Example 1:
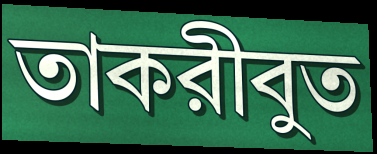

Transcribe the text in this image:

তাকরীবুত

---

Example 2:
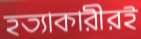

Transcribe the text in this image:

হত্যাকারীরই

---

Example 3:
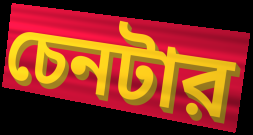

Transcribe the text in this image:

চেনটার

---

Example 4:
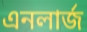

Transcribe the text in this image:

এনলার্জ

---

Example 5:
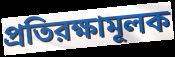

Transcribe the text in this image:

প্রতিরক্ষামূলক